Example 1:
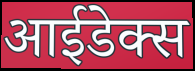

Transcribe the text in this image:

आईडेक्स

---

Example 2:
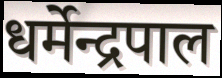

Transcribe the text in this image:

धर्मेन्द्रपाल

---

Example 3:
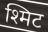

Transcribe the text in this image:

श्मिट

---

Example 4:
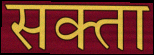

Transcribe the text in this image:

सक्‍ता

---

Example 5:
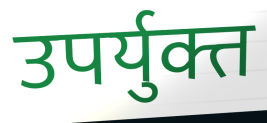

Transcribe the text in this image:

उपर्युक्त